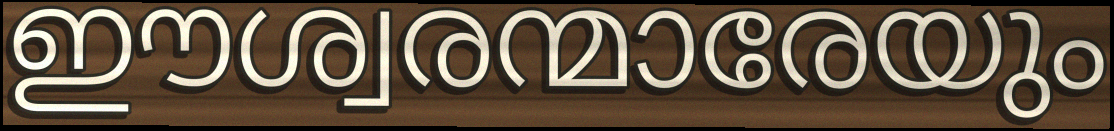
ഈശ്വരന്മാരേയും